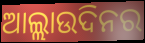
ଆଲ୍ଲାଉଦିନର